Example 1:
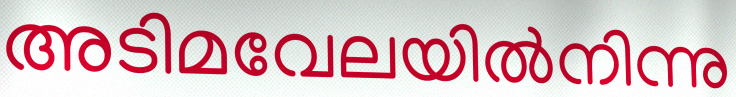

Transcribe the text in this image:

അടിമവേലയിൽനിന്നു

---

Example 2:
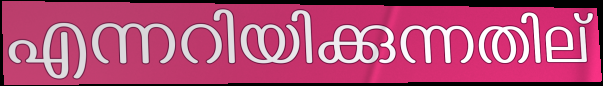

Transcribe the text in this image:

എന്നറിയിക്കുന്നതില്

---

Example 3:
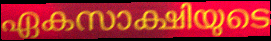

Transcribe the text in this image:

ഏകസാക്ഷിയുടെ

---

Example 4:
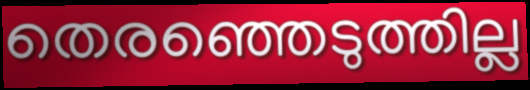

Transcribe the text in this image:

തെരഞ്ഞെടുത്തില്ല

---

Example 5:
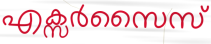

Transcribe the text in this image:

എക്സർസൈസ്